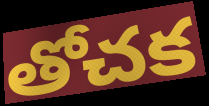
తోచక